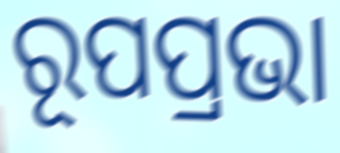
ରୂପପ୍ରଭା